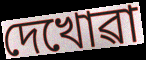
দেখোৱা